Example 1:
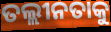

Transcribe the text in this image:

ତଲ୍ଲୀନତାକୁ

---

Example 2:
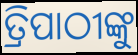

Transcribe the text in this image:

ତ୍ରିପାଠୀଙ୍କୁ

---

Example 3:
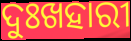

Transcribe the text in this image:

ଦୁଃଖହାରୀ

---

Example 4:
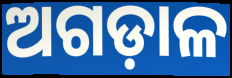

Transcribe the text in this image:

ଅଗଡ଼ାଳ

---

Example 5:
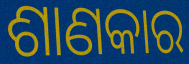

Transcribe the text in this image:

ଶାଣକାର